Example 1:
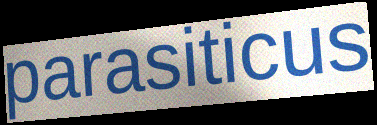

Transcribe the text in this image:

parasiticus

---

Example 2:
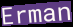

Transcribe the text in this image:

Erman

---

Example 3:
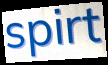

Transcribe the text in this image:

spirt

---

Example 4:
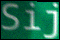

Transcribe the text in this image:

Sij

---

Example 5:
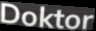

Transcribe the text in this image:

Doktor